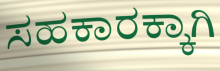
ಸಹಕಾರಕ್ಕಾಗಿ